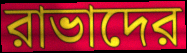
রাভাদের